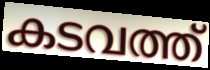
കടവത്ത്